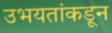
उभयतांकडून